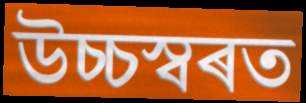
উচ্চস্বৰত